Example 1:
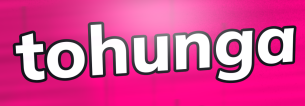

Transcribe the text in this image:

tohunga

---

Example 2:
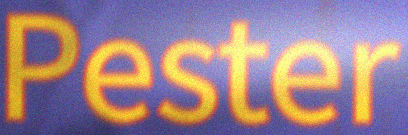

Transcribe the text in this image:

Pester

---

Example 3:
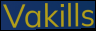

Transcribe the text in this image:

Vakills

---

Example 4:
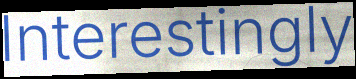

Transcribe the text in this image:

Interestingly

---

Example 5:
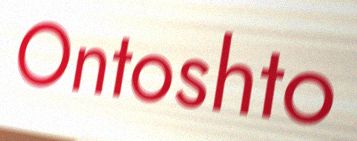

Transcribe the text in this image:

Ontoshto